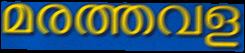
മരത്തവള